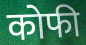
कोफी